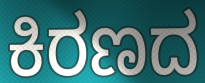
ಕಿರಣದ